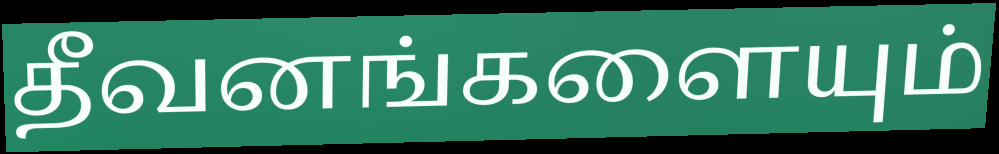
தீவனங்களையும்